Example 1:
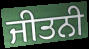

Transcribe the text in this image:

ਜੀਤਨੀ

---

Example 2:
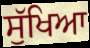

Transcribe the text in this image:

ਸੁੱਖਿਆ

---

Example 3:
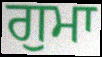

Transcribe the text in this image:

ਗੁਮਾ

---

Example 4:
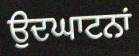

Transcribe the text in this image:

ਉਦਘਾਟਨਾਂ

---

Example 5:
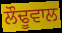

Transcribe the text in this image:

ਲੌਢੂਵਾਲ